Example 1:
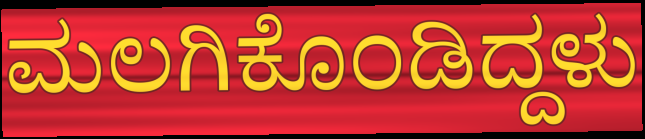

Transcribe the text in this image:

ಮಲಗಿಕೊಂಡಿದ್ದಳು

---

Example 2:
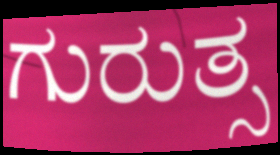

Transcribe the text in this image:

ಗುರುತ್ಸ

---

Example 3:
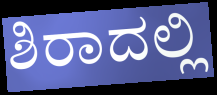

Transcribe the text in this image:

ಶಿರಾದಲ್ಲಿ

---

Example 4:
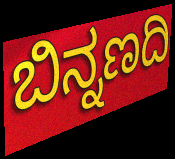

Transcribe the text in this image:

ಬಿನ್ನಣದಿ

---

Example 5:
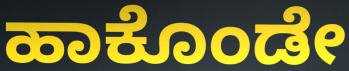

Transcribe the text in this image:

ಹಾಕೊಂಡೇ